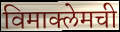
विमाक्लेमची